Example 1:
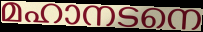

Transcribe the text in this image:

മഹാനടനെ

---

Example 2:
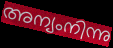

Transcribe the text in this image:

അന്യംനിന്നു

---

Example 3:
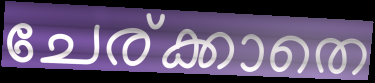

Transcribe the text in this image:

ചേര്ക്കാതെ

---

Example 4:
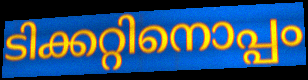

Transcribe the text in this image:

ടിക്കറ്റിനൊപ്പം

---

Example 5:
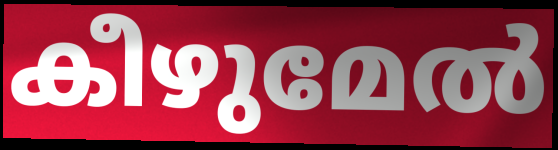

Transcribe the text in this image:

കീഴുമേൽ